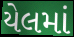
યેલમાં